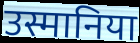
उस्मानिया